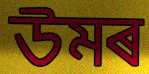
উমৰ